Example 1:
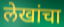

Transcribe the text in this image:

लेखांचा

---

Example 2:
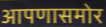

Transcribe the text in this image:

आपणासमोर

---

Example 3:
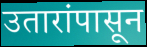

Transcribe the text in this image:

उतारांपासून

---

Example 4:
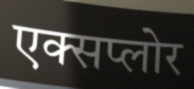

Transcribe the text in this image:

एक्‍सप्लोर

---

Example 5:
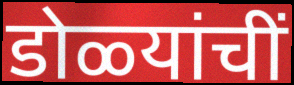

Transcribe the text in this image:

डोळ्यांचीं